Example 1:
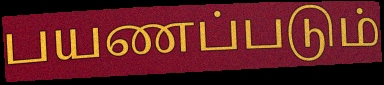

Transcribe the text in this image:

பயணப்படும்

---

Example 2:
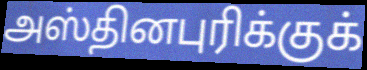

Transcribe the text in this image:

அஸ்தினபுரிக்குக்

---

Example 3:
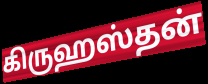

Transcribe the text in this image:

கிருஹஸ்தன்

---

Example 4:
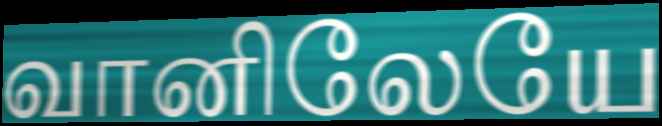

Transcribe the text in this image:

வானிலேயே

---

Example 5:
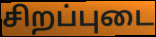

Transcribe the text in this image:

சிறப்புடை